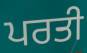
ਪਰਤੀ